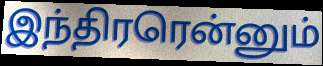
இந்திரரென்னும்